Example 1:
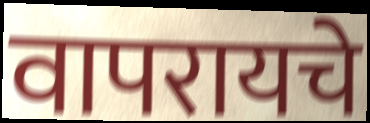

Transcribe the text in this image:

वापरायचे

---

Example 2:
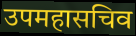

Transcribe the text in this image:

उपमहासचिव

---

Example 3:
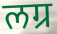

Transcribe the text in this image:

लग्र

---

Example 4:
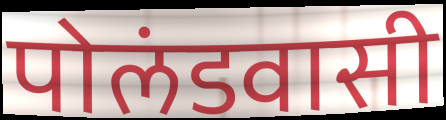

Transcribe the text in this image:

पोलंडवासी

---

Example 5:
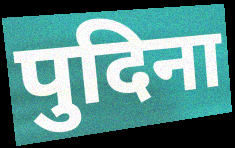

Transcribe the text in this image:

पुदिना